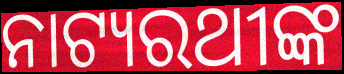
ନାଟ୍ୟରଥୀଙ୍କ